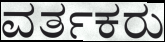
ವರ್ತಕರು